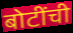
बोटींची